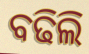
ବଢିଲି